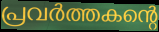
പ്രവർത്തകന്റെ